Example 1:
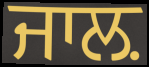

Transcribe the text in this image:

ਜਾਲ਼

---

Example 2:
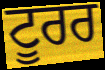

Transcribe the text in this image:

ਟੂਰਰ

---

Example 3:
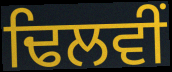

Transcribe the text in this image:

ਢਿਲਵੀਂ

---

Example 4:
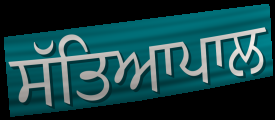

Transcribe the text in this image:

ਸੱਤਿਆਪਾਲ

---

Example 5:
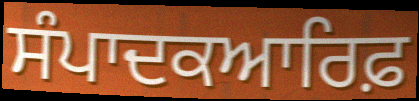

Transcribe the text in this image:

ਸੰਪਾਦਕਆਰਿਫ਼